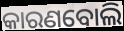
କାରଣବୋଲି